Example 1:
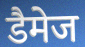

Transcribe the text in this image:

डैमेज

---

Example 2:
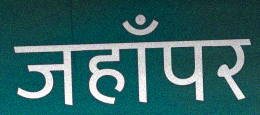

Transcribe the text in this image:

जहाँपर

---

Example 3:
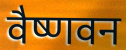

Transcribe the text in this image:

वैष्णवन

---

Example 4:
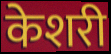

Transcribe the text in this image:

केशरी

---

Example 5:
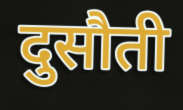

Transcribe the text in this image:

दुसौती